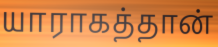
யாராகத்தான்